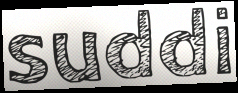
suddi